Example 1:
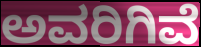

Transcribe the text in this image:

ಅವರಿಗಿವೆ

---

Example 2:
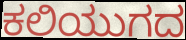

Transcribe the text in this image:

ಕಲಿಯುಗದ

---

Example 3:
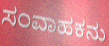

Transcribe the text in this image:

ಸಂವಾಹಕನು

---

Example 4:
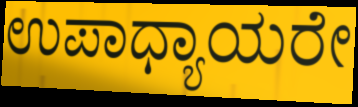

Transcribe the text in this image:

ಉಪಾಧ್ಯಾಯರೇ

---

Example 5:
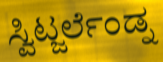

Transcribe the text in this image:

ಸ್ವಿಟ್ಜರ್ಲೆಂಡ್ನ